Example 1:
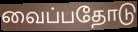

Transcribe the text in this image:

வைப்பதோடு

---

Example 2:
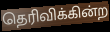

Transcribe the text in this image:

தெரிவிக்கின்ற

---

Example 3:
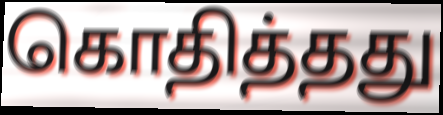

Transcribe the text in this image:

கொதித்தது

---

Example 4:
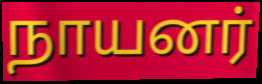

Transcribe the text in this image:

நாயனர்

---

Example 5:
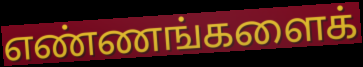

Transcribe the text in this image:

எண்ணங்களைக்